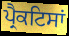
ਪ੍ਰੈਕਟਿਸਾਂ